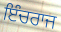
ਇੰਚਰਾਜ